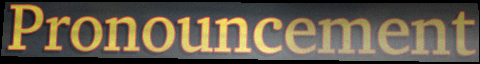
Pronouncement